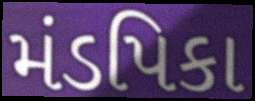
મંડપિકા